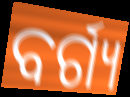
ବର୍ଗ୍ୟ